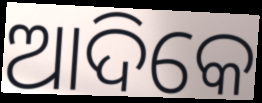
ଆଦିକେ